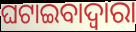
ଘଟାଇବାଦ୍ୱାରା